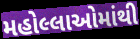
મહોલ્લાઓમાંથી